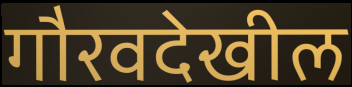
गौरवदेखील